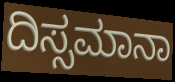
ದಿಸ್ಸಮಾನಾ